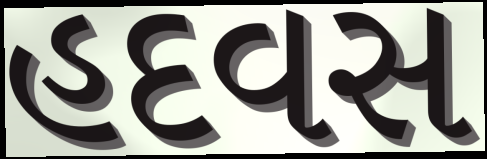
હદવસ